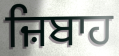
ਜ਼ਿਬਾਹ